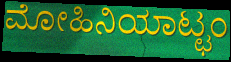
ಮೋಹಿನಿಯಾಟ್ಟಂ